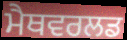
ਮੈਥਵਰਲਡ